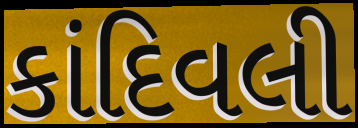
કાંદિવલી